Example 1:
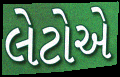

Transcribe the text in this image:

લેટોએ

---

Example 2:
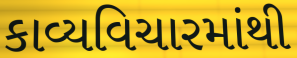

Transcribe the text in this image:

કાવ્યવિચારમાંથી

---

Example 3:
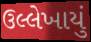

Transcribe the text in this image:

ઉલ્લેખાયું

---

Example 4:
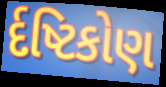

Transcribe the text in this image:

ર્દષ્ટિકોણ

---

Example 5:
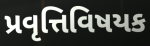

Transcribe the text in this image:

પ્રવૃત્તિવિષયક